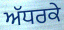
ਅੱਧਰਕੇ